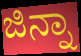
ಜಿನ್ನಾ